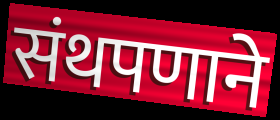
संथपणाने